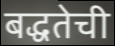
बद्धतेची